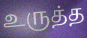
உருத்த